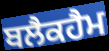
ਬਲੈਕਹੈਮ